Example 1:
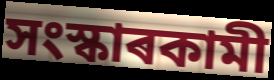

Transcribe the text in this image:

সংস্কাৰকামী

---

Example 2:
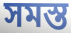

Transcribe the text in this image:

সমস্ত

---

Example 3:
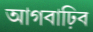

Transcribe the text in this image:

আগবাঢ়িব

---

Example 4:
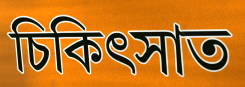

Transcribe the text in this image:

চিকিৎসাত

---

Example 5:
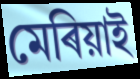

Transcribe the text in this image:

মেৰিয়াই